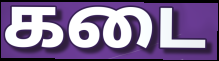
கடை